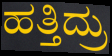
ಹತ್ತಿದ್ರು